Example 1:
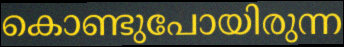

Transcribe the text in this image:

കൊണ്ടുപോയിരുന്ന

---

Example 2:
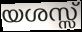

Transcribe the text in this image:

യശസ്സ്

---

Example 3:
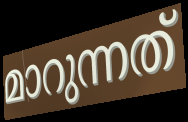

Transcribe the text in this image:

മാറുന്നത്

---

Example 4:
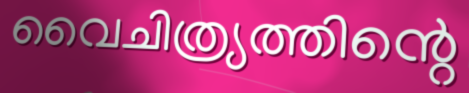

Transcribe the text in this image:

വൈചിത്ര്യത്തിന്റെ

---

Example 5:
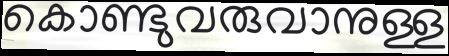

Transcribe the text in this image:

കൊണ്ടുവരുവാനുള്ള